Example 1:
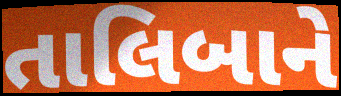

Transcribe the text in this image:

તાલિબાને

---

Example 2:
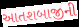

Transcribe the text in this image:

આતશબાજીની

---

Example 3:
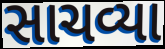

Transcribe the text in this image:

સાચવ્યા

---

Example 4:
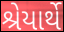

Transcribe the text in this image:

શ્રેયાર્થે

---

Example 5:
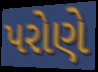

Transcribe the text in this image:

પરોણે